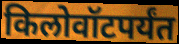
किलोवॉटपर्यंत